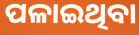
ପଳାଇଥିବା